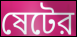
ষেটের